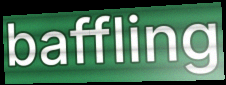
baffling